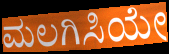
ಮಲಗಿಸಿಯೇ